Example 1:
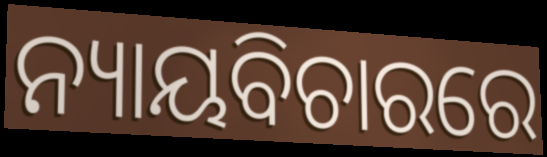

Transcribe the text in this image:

ନ୍ୟାୟବିଚାରରେ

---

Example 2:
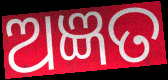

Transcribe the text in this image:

ଅଜ୍ଞତ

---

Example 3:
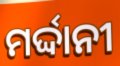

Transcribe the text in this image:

ମର୍ଦ୍ଦାନୀ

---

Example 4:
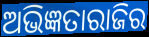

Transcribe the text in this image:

ଅଭିଜ୍ଞତାରାଜିର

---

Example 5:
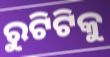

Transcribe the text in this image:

ରୁଟିଟିକୁ